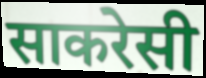
साकरेसी